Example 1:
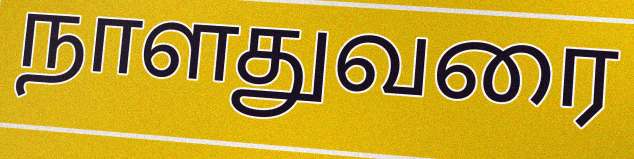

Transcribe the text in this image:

நாளதுவரை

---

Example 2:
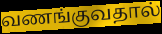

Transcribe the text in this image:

வணங்குவதால்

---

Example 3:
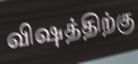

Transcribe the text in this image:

விஷத்திற்கு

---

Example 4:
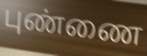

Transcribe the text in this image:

புண்ணை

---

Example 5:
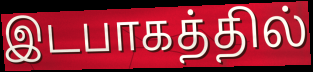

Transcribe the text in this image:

இடபாகத்தில்